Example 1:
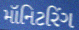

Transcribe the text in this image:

મૉનિટરિંગ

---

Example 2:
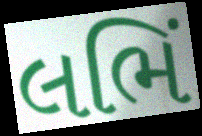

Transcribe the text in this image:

લભિં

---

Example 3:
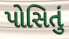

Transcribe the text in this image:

પોસિતું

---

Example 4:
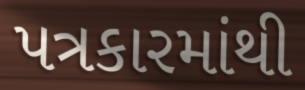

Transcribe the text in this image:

પત્રકારમાંથી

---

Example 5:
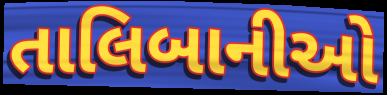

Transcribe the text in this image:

તાલિબાનીઓ